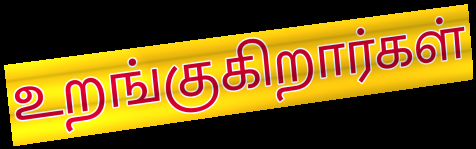
உறங்குகிறார்கள்